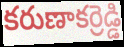
కరుణాకర్రెడ్డి